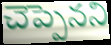
చెప్పెనని